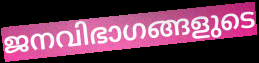
ജനവിഭാഗങ്ങളുടെ